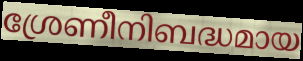
ശ്രേണീനിബദ്ധമായ